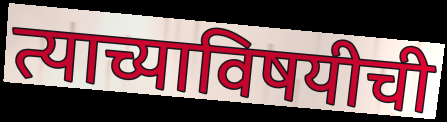
त्याच्याविषयीची